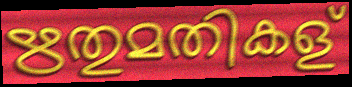
ഋതുമതികള്